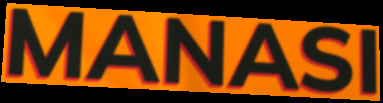
MANASI